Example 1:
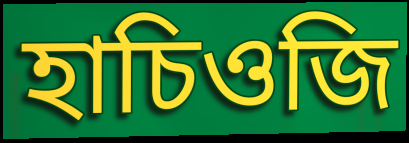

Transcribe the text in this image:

হাচিওজি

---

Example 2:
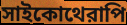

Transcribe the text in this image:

সাইকোথেরাপি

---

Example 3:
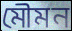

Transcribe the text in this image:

মৌমন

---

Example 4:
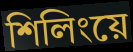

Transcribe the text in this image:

শিলিংয়ে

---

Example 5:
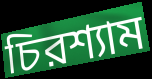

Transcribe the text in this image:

চিরশ্যাম